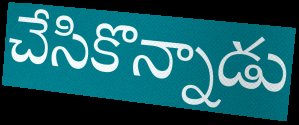
చేసికొన్నాడు